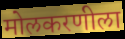
मोलकरणीला